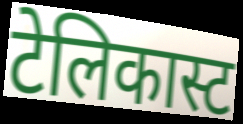
टेलिकास्ट